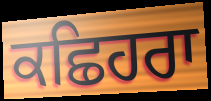
ਕਛਿਹਰਾ